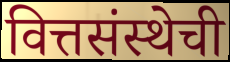
वित्तसंस्थेची